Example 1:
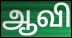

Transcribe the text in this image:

ஆவி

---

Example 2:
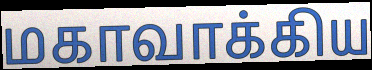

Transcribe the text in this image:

மகாவாக்கிய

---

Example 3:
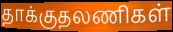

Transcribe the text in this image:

தாக்குதலணிகள்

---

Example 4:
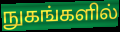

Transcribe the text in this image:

நுகங்களில்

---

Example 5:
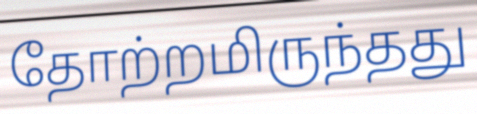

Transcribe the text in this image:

தோற்றமிருந்தது